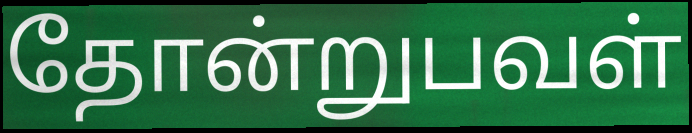
தோன்றுபவள்